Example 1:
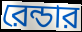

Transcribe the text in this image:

রেন্ডার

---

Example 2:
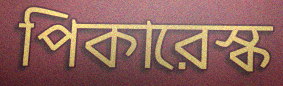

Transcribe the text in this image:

পিকারেস্ক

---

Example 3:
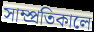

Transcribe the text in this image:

সাম্প্রতিকালে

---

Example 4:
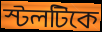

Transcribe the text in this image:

স্টলটিকে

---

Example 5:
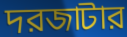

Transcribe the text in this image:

দরজাটার